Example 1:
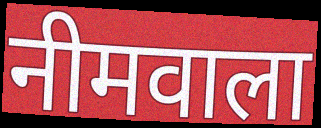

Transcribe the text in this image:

नीमवाला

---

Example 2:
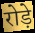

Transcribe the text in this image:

रोड़े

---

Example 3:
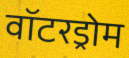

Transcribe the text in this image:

वॉटरड्रोम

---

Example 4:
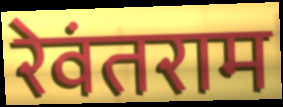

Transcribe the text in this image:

रेवंतराम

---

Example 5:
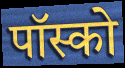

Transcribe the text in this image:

पॉस्को